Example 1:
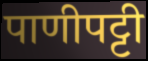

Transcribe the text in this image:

पाणीपट्टी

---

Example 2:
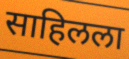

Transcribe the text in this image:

साहिलला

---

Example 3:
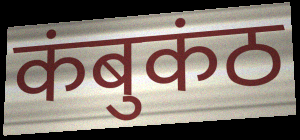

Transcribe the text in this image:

कंबुकंठ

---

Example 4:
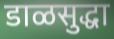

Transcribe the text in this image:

डाळसुद्धा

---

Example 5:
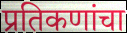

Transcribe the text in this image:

प्रतिकणांचा